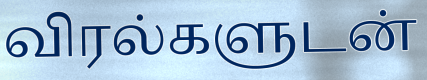
விரல்களுடன்